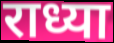
राध्या